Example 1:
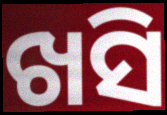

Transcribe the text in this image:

ଖସି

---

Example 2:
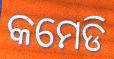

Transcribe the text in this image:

କମେଡି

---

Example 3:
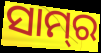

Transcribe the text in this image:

ସାମ୍‌ର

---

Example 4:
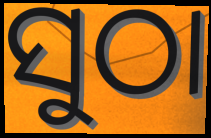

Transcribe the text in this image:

ସୁଠା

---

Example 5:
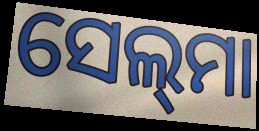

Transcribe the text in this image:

ସେଲ୍‌ମା